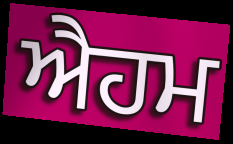
ਐਹਮ